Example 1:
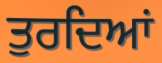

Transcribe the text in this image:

ਤੁਰਦਿਆਂ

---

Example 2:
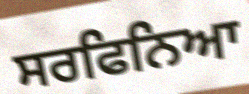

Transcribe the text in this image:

ਸਰਫਿਨਿਆ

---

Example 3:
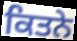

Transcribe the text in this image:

ਕਿਤਨੇ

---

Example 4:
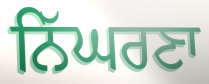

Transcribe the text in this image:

ਨਿੱਘਰਣਾ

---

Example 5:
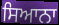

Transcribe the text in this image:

ਸਿਆਨਾ